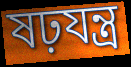
ষঢ়যন্ত্র